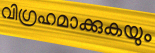
വിഗ്രഹമാക്കുകയും